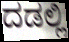
ದಡಲ್ಲಿ